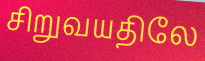
சிறுவயதிலே